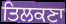
ਤਿਲਕਣਾ